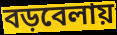
বড়বেলায়